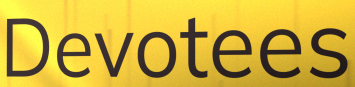
Devotees